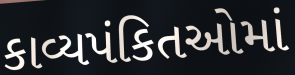
કાવ્યપંકિતઓમાં